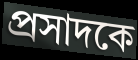
প্রসাদকে